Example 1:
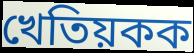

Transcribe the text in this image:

খেতিয়কক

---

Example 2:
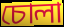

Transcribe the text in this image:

চোলা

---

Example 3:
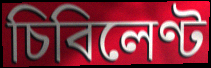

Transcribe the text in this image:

চিবিলেণ্ট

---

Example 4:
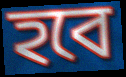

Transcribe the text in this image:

হবে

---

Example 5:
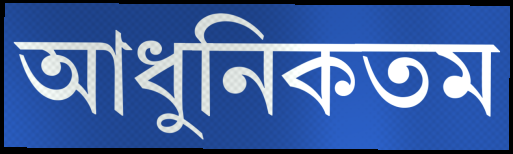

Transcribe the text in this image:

আধুনিকতম